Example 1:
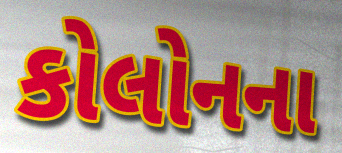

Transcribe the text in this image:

કોલોનના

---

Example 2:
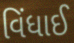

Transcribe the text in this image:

વિંધાઈ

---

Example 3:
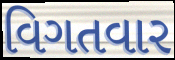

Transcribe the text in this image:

વિગતવાર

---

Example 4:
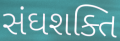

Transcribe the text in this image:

સંઘશક્તિ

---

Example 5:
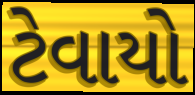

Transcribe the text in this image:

ટેવાયો